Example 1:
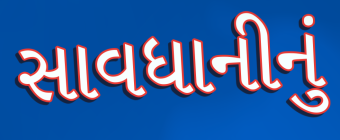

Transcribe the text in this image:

સાવધાનીનું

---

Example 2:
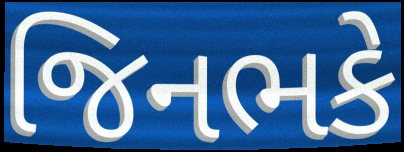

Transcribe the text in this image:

જિનભકે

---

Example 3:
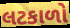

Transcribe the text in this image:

લટકાળો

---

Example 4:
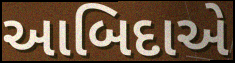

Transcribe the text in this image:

આબિદાએ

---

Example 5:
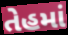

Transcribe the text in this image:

તેહમાં